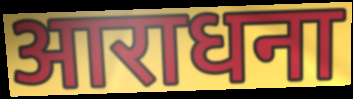
आराधना